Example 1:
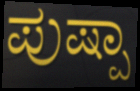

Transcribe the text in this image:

ಪುಷ್ಪಾ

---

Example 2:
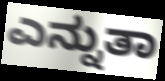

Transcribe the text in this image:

ಎನ್ನುತಾ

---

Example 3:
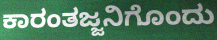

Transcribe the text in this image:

ಕಾರಂತಜ್ಜನಿಗೊಂದು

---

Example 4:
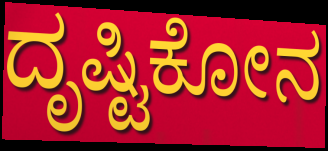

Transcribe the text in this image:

ದೃಷ್ಟಿಕೋನ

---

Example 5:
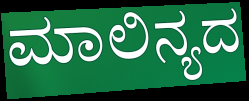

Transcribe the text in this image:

ಮಾಲಿನ್ಯದ